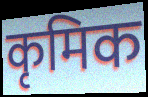
कृमिक